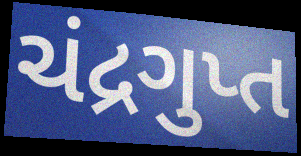
ચંદ્રગુપ્ત